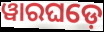
ୱାରଘଡ଼େ